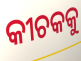
କୀଚକକୁ